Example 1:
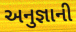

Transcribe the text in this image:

અનુજ્ઞાની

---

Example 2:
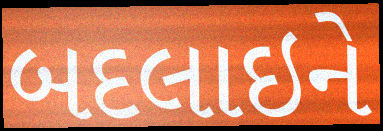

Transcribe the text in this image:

બદલાઇને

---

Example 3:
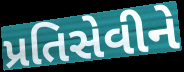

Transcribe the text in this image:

પ્રતિસેવીને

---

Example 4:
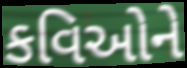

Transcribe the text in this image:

કવિઓને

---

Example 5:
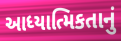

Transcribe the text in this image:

આધ્યાત્મિકતાનું